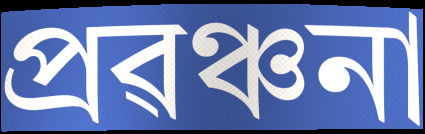
প্ৰৱঞ্চনা